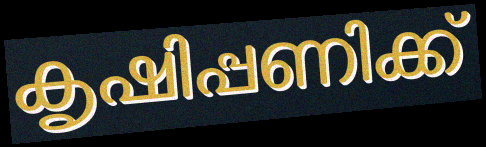
കൃഷിപ്പണിക്ക്